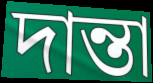
দান্তা